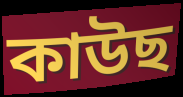
কাউছ